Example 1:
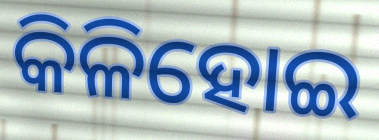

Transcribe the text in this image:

କିଳିହୋଇ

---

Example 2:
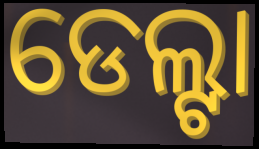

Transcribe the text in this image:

ଡେଲ୍ଟା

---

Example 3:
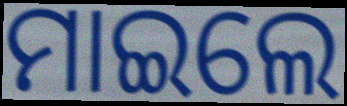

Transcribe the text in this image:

ମାଇଲେ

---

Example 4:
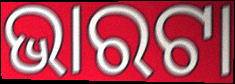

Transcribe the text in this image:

ଭାରଟା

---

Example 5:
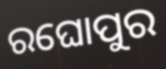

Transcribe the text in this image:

ରଘୋପୁର